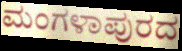
ಮಂಗಳಾಪುರದ